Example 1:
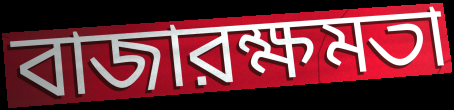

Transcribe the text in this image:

বাজারক্ষমতা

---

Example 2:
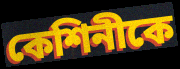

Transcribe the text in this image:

কেশিনীকে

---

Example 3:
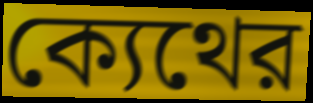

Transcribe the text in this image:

ক্যেথের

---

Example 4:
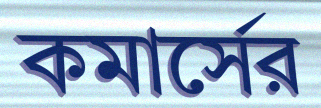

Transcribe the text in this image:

কমার্সের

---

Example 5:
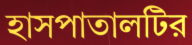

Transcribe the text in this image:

হাসপাতালটির